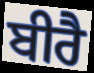
ਬੀਰੈ